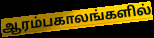
ஆரம்பகாலங்களில்